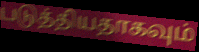
படுத்தியதாகவும்